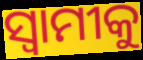
ସ୍ୱାମୀକୁ